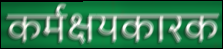
कर्मक्षयकारक